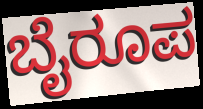
ಬೈರೂಪ